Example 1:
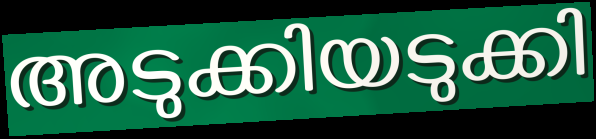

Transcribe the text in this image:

അടുക്കിയടുക്കി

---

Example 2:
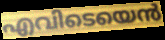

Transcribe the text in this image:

എവിടെയെൻ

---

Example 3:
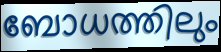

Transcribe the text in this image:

ബോധത്തിലും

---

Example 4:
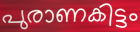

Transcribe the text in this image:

പുരാണകിട്ടം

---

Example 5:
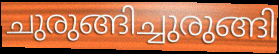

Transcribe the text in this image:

ചുരുങ്ങിച്ചുരുങ്ങി